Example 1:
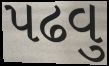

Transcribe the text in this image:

પઢવુ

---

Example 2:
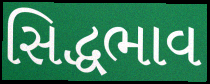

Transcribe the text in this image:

સિદ્ધભાવ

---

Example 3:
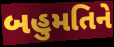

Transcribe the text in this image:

બહુમતિને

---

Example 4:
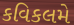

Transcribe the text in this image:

કવિકલમે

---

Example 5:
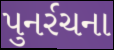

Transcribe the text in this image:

પુનર્રચના